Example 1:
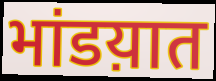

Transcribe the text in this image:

भांडय़ात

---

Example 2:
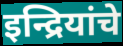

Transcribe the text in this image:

इन्द्रियांचे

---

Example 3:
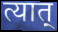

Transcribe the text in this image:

त्यात्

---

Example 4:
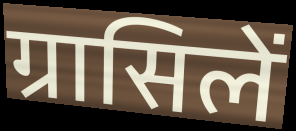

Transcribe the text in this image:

ग्रासिलें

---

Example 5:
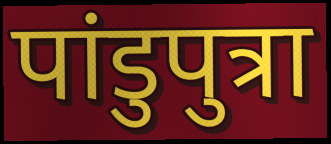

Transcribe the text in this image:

पांडुपुत्रा